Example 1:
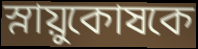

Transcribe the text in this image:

স্নায়ুকোষকে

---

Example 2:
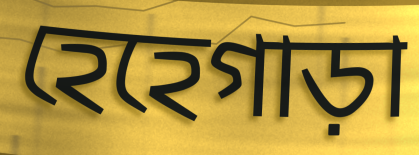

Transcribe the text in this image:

হেহেগাড়া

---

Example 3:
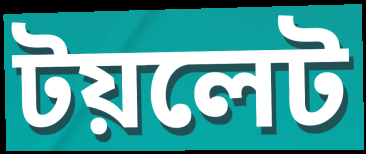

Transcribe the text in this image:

টয়লেট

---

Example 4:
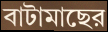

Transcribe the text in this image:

বাটামাছের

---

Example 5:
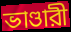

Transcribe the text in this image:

ভাণ্ডারী